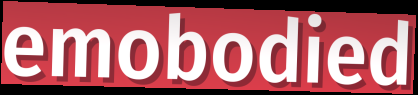
emobodied